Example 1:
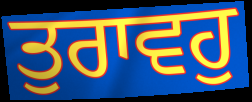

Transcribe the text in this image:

ਤੁਰਾਵਹੁ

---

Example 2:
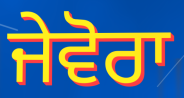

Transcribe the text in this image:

ਜੇਵੋਰਾ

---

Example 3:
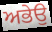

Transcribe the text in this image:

ਅਭੇਉ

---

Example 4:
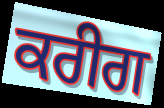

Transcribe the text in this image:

ਕਰੀਗ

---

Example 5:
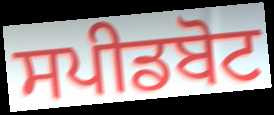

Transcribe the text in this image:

ਸਪੀਡਬੋਟ